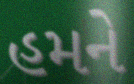
હમને